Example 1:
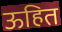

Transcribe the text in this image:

ऊहित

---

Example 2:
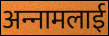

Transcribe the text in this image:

अन्‍नामलाई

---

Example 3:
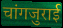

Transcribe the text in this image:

चांगजुराई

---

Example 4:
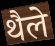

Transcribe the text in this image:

थैले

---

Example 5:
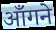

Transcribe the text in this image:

आँगने